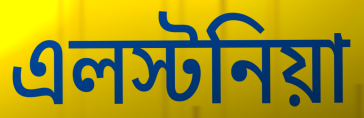
এলস্টনিয়া